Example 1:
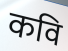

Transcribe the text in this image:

कवि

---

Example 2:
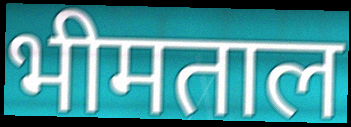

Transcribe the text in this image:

भीमताल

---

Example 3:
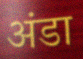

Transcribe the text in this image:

अंडा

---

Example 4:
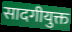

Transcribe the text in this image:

सादगीयुक्त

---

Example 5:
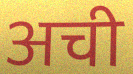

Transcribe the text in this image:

अची